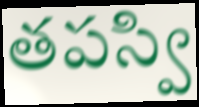
తపస్వి